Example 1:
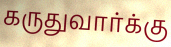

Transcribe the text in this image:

கருதுவார்க்கு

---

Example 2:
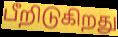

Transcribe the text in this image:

பீறிடுகிறது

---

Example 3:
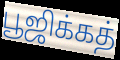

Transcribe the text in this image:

பூஜிக்கத்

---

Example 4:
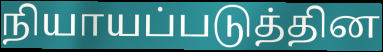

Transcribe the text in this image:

நியாயப்படுத்தின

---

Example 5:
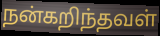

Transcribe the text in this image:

நன்கறிந்தவள்